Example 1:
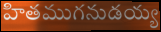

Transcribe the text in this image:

హితముగనుడయ్య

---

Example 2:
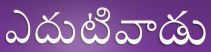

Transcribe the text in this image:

ఎదుటివాడు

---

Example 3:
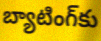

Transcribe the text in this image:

బ్యాటింగ్‌కు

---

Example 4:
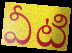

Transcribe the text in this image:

వీటి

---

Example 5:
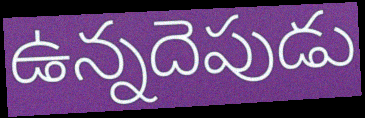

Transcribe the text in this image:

ఉన్నదెపుడు